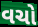
વચો